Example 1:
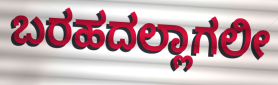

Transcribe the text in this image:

ಬರಹದಲ್ಲಾಗಲೀ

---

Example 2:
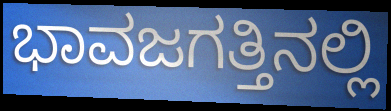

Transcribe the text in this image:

ಭಾವಜಗತ್ತಿನಲ್ಲಿ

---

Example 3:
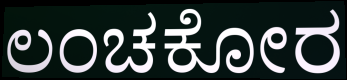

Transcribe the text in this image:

ಲಂಚಕೋರ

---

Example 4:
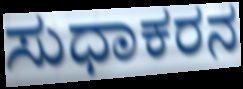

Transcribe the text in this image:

ಸುಧಾಕರನ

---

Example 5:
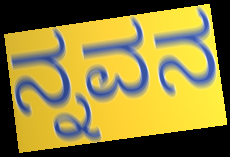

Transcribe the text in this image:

ನ್ನವನ